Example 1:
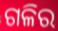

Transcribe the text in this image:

ଗଳିର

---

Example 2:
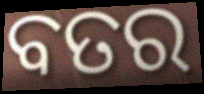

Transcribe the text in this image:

ବତର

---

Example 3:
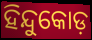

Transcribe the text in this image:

ହିନ୍ଦୁକୋଡ଼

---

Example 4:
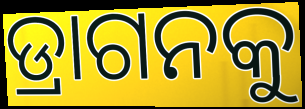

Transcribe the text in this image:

ଡ୍ରାଗନକୁ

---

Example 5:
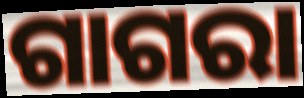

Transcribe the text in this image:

ଗାଗରା